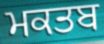
ਮਕਤਬ